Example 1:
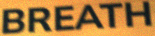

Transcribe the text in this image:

BREATH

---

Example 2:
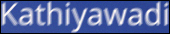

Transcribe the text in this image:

Kathiyawadi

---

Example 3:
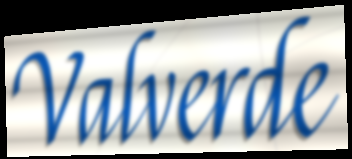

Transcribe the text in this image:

Valverde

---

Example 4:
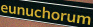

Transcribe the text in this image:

eunuchorum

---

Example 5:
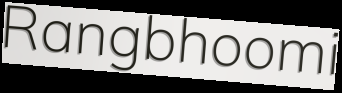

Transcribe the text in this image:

Rangbhoomi